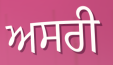
ਅਸਰੀ